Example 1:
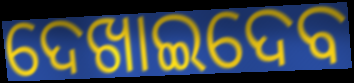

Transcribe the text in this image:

ଦେଖାଇଦେବ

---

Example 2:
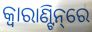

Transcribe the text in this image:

କ୍ବାରାଣ୍ଟିନ୍‌ରେ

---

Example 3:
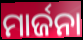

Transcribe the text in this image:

ମାର୍ଜନା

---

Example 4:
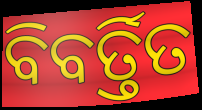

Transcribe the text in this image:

ବିବର୍ତ୍ତିତ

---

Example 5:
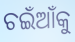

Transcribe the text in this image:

ଚଇଁଆଁକୁ